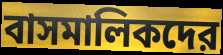
বাসমালিকদের